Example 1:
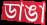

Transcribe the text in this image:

ডাঙা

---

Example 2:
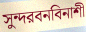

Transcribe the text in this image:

সুন্দরবনবিনাশী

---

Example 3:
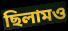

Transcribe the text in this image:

ছিলামও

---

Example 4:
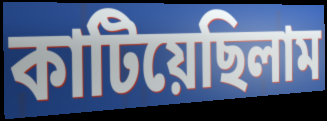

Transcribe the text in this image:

কাটিয়েছিলাম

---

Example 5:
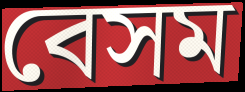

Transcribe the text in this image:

বেসম